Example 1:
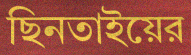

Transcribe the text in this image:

ছিনতাইয়ের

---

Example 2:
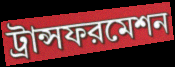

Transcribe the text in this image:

ট্রান্সফরমেশন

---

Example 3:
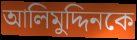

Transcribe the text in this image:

আলিমুদ্দিনকে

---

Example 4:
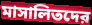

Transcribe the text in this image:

মাসালিতদের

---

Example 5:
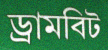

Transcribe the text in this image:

ড্রামবিট